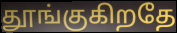
தூங்குகிறதே